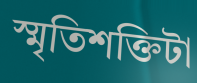
স্মৃতিশক্তিটা